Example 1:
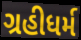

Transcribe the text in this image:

ગ્રહીધર્મ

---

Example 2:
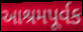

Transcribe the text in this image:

આશ્રમપૂર્વક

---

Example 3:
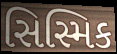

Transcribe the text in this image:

સિસ્મિક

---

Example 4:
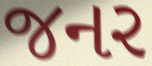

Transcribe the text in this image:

જનર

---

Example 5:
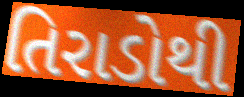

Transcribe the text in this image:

તિરાડોથી